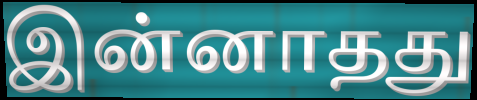
இன்னாதது